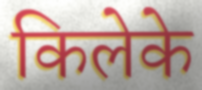
किलेके